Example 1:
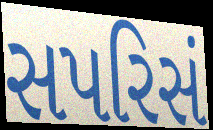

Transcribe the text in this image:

સપરિસં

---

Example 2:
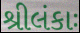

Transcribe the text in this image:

શ્રીલંકાઃ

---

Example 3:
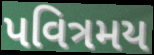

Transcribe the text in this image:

પવિત્રમય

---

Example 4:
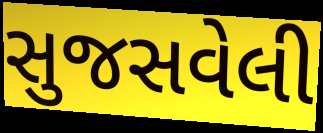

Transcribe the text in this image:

સુજસવેલી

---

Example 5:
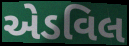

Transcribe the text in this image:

એડવિલ